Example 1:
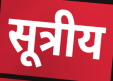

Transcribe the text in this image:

सूत्रीय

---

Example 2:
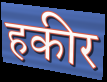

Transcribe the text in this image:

हकीर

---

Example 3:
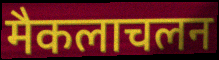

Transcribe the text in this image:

मैकलाचलन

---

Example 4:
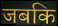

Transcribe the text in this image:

जबकि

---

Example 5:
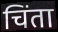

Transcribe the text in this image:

चिंता